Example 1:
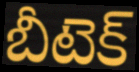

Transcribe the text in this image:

బీటెక్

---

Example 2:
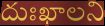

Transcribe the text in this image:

దుఃఖాలని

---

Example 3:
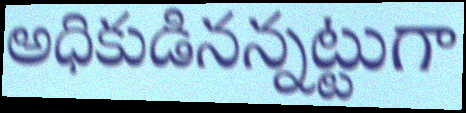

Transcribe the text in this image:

అధికుడినన్నట్టుగా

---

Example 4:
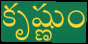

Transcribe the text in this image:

కృష్ణుం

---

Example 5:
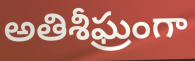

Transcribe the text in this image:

అతిశీఘ్రంగా